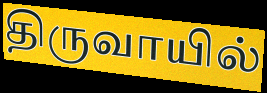
திருவாயில்